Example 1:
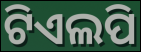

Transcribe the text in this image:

ଟିଏଲପି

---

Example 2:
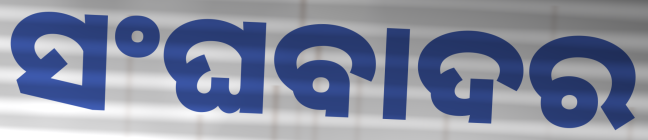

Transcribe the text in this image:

ସଂଘବାଦର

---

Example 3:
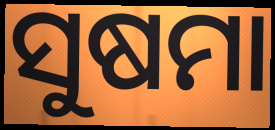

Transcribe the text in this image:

ସୁଷମା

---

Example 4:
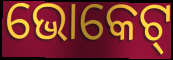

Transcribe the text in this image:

ଭୋକେଟ୍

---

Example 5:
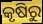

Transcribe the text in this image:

କୃଷିରୁ